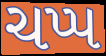
ચપ્પ